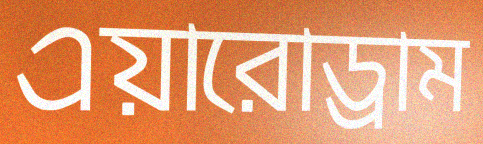
এয়ারোড্রাম